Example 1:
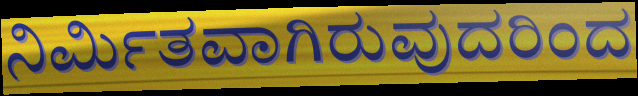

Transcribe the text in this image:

ನಿರ್ಮಿತವಾಗಿರುವುದರಿಂದ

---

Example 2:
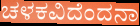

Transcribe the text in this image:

ಚಳಕವಿದೆಂದನಾ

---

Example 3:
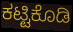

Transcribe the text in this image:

ಕಟ್ಟಿಕೊಡಿ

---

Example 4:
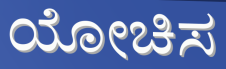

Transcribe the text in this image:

ಯೋಚಿಸ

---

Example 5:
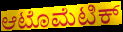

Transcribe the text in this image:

ಆಟೊಮೆಟಿಕ್